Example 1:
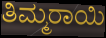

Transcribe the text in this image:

ತಿಮ್ಮರಾಯಿ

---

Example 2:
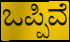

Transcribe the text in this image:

ಒಪ್ಪಿವೆ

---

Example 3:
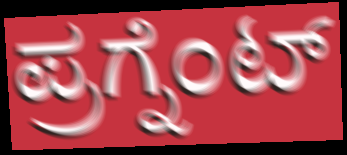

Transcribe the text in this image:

ಪ್ರಗ್ನೆಂಟ್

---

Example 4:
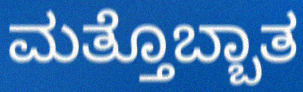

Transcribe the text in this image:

ಮತ್ತೊಬ್ಬಾತ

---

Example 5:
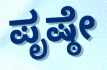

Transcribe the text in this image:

ಪೃಷ್ಠೇ